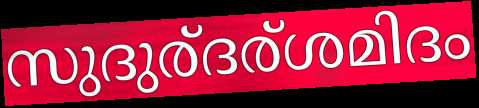
സുദുര്ദര്ശമിദം